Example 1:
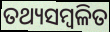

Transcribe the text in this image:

ତଥ୍ୟସମ୍ବଳିତ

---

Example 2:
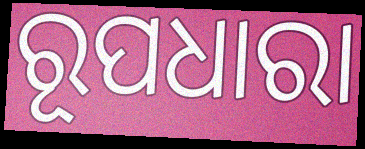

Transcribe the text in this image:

ରୂପଧାରା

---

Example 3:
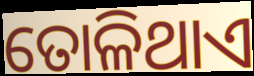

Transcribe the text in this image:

ତୋଳିଥାଏ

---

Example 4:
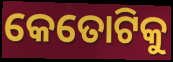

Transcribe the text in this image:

କେତୋଟିକୁ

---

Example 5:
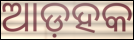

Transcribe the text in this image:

ଆଡ଼ହକ